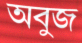
অবুজ